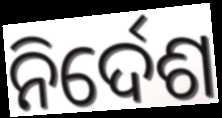
ନିର୍ଦେଶ